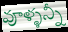
వూళ్ళన్నీ